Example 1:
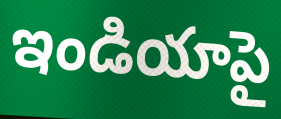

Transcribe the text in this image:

ఇండియాపై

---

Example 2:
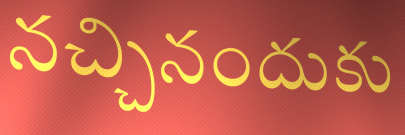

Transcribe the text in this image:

నచ్చినందుకు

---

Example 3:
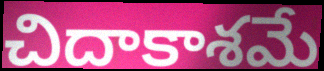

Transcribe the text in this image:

చిదాకాశమే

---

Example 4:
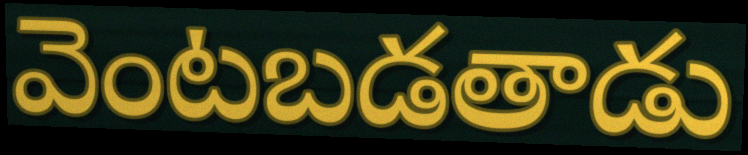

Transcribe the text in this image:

వెంటబడతాడు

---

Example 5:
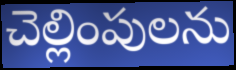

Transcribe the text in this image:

చెల్లింపులను